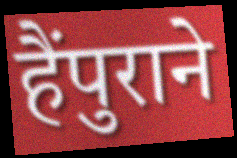
हैंपुराने